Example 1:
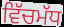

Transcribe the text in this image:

ਵਿੱਚਮੱਧ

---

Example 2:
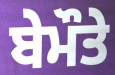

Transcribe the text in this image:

ਬੇਮੌਤੇ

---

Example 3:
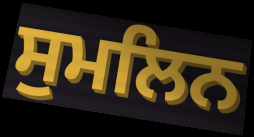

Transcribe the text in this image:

ਸੁਮਲਿਨ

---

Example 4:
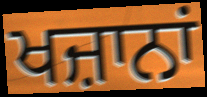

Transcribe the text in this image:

ਖਜ਼ਾਨਾਂ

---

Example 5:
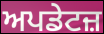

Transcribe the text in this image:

ਅਪਡੇਟਜ਼